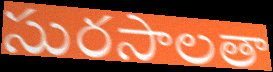
సురసాలతా